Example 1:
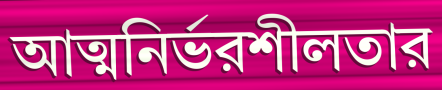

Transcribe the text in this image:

আত্মনির্ভরশীলতার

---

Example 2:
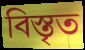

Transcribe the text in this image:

বিস্তৃত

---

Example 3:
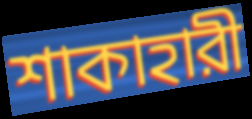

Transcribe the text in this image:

শাকাহারী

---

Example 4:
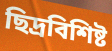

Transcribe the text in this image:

ছিদ্রবিশিষ্ট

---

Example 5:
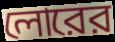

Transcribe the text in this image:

লোরের